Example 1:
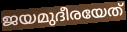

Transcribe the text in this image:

ജയമുദീരയേത്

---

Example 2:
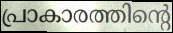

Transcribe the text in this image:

പ്രാകാരത്തിന്റെ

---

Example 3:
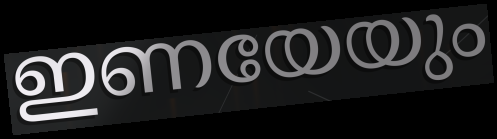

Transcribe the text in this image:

ഇണയേയും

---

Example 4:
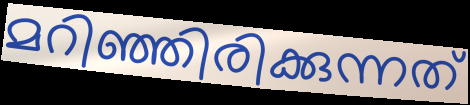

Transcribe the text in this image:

മറിഞ്ഞിരിക്കുന്നത്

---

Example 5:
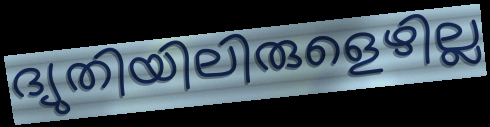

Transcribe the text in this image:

ദ്യുതിയിലിരുളെഴില്ല